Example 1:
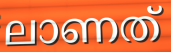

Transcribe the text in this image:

ലാണത്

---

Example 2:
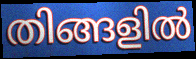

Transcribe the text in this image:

തിങ്ങളിൽ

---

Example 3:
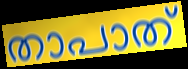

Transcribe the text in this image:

താപാത്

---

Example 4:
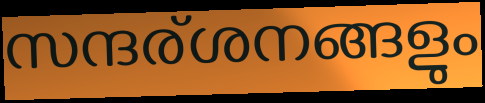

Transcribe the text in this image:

സന്ദര്ശനങ്ങളും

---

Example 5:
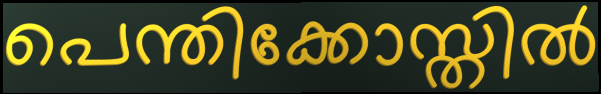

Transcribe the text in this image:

പെന്തിക്കോസ്തിൽ